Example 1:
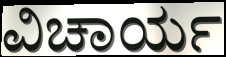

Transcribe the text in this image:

ವಿಚಾರ್ಯ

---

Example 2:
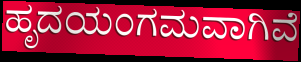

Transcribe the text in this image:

ಹೃದಯಂಗಮವಾಗಿವೆ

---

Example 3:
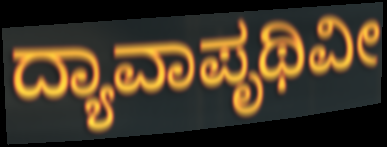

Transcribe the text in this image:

ದ್ಯಾವಾಪೃಥಿವೀ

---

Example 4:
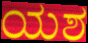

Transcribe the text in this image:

ಯಶ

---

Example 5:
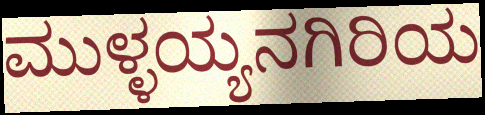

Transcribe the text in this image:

ಮುಳ್ಳಯ್ಯನಗಿರಿಯ